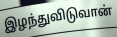
இழந்துவிடுவான்